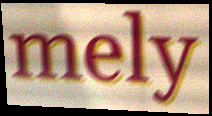
mely